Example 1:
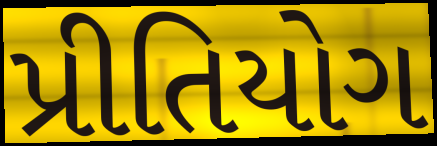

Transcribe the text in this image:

પ્રીતિયોગ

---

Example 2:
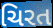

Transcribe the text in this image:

ચિરત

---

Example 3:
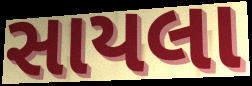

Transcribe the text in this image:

સાયલા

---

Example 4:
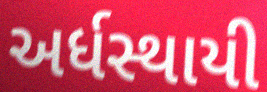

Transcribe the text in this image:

અર્ધસ્થાયી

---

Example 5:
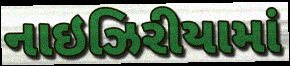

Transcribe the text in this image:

નાઇઝિરીયામાં